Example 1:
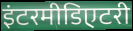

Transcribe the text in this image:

इंटरमीडिएटरी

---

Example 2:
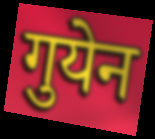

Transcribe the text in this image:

गुयेन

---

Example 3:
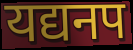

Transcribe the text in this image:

यद्यनप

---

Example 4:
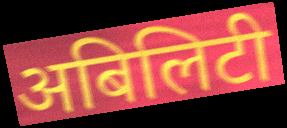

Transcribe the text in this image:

अबिलिटी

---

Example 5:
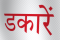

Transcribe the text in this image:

डकारें